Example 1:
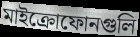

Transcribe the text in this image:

মাইক্রোফোনগুলি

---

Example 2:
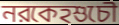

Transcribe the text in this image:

নরকেহশুচৌ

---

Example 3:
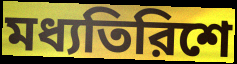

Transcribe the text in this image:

মধ্যতিরিশে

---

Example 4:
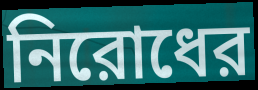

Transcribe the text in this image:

নিরোধের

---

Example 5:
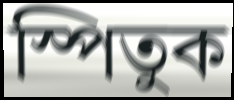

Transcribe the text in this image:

স্পিতুক